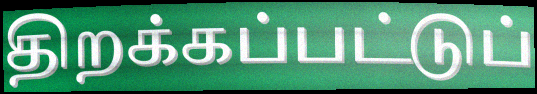
திறக்கப்பட்டுப்